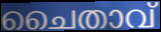
ചൈതാവ്